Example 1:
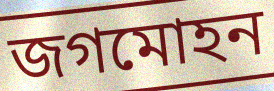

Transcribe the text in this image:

জগমোহন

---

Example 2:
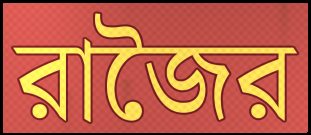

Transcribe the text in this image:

রাজৈর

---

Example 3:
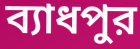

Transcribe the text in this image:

ব্যাধপুর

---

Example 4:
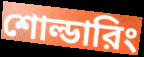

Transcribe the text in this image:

শোল্ডারিং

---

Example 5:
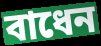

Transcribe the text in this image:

বাধেন